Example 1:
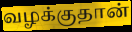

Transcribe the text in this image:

வழக்குதான்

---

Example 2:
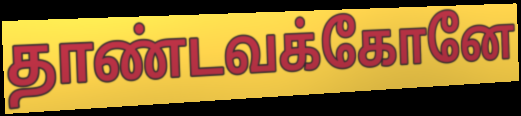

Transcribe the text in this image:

தாண்டவக்கோனே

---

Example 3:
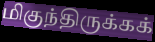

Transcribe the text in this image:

மிகுந்திருக்கக்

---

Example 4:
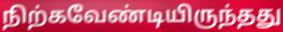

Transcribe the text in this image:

நிற்கவேண்டியிருந்தது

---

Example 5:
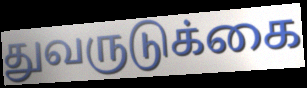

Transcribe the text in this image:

துவருடுக்கை